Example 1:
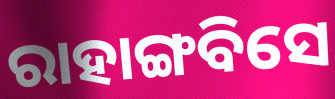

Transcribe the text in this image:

ରାହାଙ୍ଗବିସେ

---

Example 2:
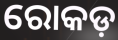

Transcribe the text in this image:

ରୋକଡ଼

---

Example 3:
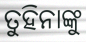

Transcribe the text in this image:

ତୁହିନାଙ୍କୁ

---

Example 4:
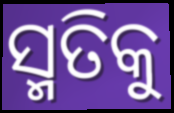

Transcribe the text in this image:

ସ୍ମତିକୁ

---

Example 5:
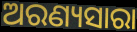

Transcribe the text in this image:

ଅରଣ୍ୟସାରା